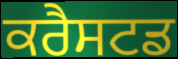
ਕਰੈਸਟਡ